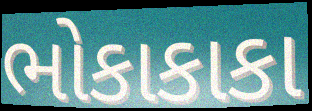
ભોકાકાકા